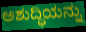
ಅಶುದ್ಧಿಯನ್ನು